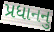
પ્રધાનનુ